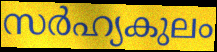
സർഹ്യകുലം